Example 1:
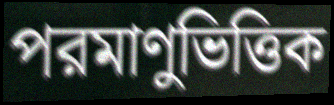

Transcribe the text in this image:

পরমাণুভিত্তিক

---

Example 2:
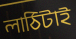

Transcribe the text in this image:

লাঠিটাই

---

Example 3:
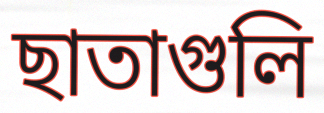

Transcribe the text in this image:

ছাতাগুলি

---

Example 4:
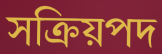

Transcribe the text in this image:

সক্রিয়পদ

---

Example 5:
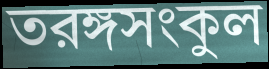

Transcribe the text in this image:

তরঙ্গসংকুল